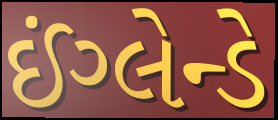
ઈંગ્લેન્ડે